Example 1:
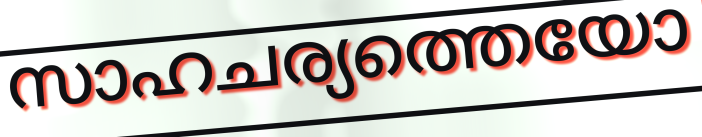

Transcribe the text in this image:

സാഹചര്യത്തെയോ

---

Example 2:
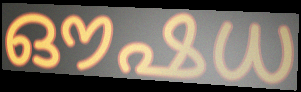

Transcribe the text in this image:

ഔഷധ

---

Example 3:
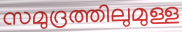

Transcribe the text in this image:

സമുദ്രത്തിലുമുള്ള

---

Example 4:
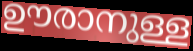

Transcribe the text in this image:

ഊരാനുള്ള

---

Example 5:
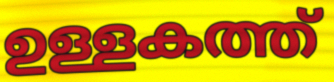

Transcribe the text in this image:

ഉള്ളകത്ത്